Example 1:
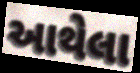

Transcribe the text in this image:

આથેલા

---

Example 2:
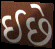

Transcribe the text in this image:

ઈછે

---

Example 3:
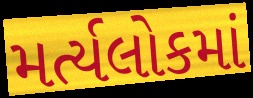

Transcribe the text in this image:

મર્ત્યલોકમાં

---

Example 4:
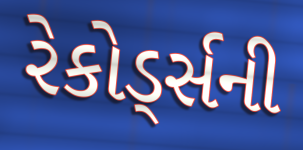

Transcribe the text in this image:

રેકોર્ડ્સની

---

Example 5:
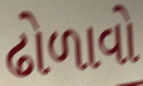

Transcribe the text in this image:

ઢોળાવો